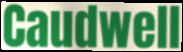
Caudwell